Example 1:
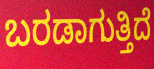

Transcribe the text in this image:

ಬರಡಾಗುತ್ತಿದೆ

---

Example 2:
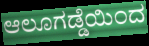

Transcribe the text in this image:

ಆಲೂಗಡ್ಡೆಯಿಂದ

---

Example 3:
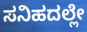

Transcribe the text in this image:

ಸನಿಹದಲ್ಲೇ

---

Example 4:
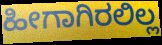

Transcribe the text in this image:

ಹೀಗಾಗಿರಲಿಲ್ಲ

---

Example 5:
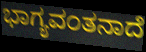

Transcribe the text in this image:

ಭಾಗ್ಯವಂತನಾದೆ